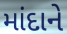
માંદાને